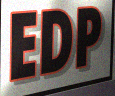
EDP